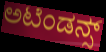
ಅಟೆಂಡನ್ಸ್